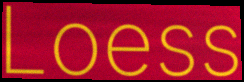
Loess